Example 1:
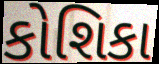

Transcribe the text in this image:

કોશિકા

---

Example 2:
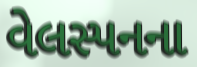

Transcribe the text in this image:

વેલસ્પનના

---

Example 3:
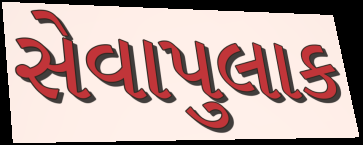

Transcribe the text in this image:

સેવાપુલાક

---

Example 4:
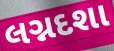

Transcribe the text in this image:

લગ્નદશા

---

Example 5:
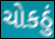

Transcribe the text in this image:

ચોકઠું